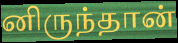
னிருந்தான்